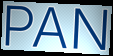
PAN